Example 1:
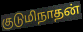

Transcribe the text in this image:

குடுமிநாதன்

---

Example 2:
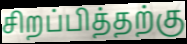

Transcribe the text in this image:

சிறப்பித்தற்கு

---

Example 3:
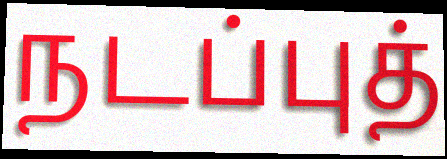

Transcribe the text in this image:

நடப்புத்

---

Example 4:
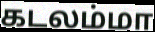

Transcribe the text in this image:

கடலம்மா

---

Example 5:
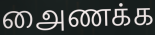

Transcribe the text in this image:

அைணக்க